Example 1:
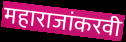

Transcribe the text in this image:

महाराजांकरवी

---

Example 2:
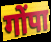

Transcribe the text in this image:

गोंपा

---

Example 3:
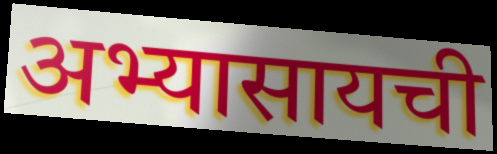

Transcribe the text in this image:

अभ्यासायची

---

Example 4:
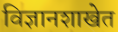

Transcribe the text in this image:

विज्ञानशाखेत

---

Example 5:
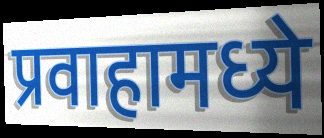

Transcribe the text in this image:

प्रवाहामध्ये